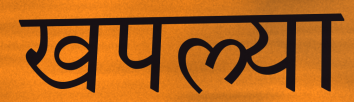
खपल्या